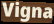
Vigna